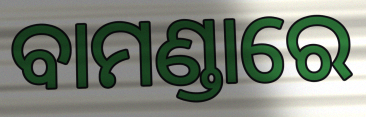
ବାମଣ୍ଡାରେ